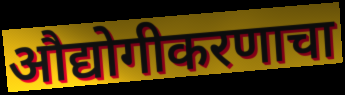
औद्योगीकरणाचा